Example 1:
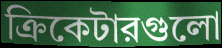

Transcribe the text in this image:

ক্রিকেটারগুলো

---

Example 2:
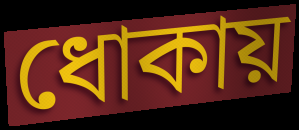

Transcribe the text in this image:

ধোকায়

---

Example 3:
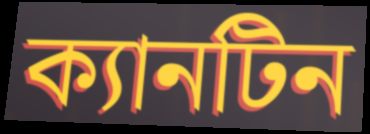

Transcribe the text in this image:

ক্যানটিন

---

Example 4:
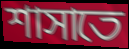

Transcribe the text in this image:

শাসাতে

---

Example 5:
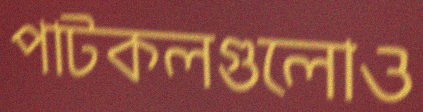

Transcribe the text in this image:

পাটকলগুলোও